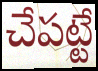
చేపట్టే